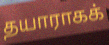
தயாராகக்